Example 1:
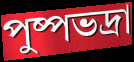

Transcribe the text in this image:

পুষ্পভদ্রা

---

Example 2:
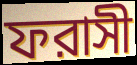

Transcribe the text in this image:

ফরাসী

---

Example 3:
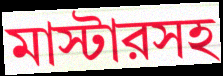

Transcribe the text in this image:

মাস্টারসহ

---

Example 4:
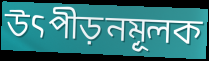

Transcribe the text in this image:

উৎপীড়নমূলক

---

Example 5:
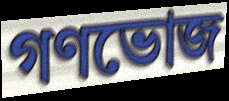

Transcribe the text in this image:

গণভোজ